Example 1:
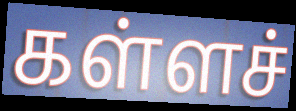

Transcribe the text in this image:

கள்ளச்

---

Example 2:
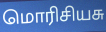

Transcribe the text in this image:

மொரிசியசு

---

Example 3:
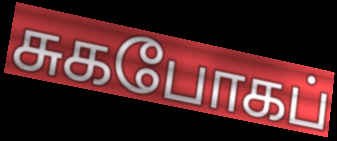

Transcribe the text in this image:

சுகபோகப்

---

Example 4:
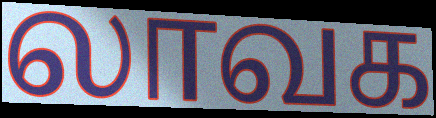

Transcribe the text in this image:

லாவக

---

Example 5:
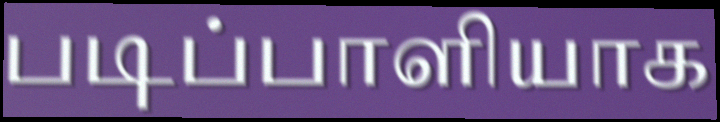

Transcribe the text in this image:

படிப்பாளியாக